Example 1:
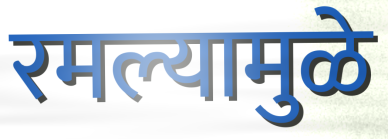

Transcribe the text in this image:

रमल्यामुळे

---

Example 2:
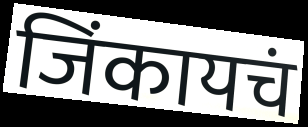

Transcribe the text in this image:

जिंकायचं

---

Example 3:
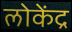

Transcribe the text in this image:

लोकेंद्र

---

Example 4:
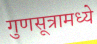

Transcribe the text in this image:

गुणसूत्रामध्ये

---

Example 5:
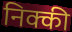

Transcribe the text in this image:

निक्की